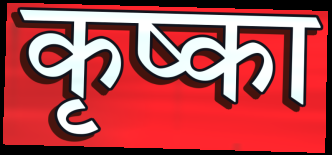
कृष्का